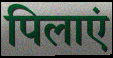
पिलाएं